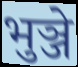
भुञ्जे